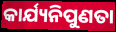
କାର୍ଯ୍ୟନିପୁଣତା